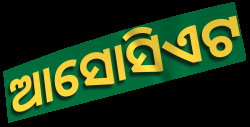
ଆସୋସିଏଟ